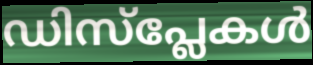
ഡിസ്പ്ലേകൾ